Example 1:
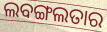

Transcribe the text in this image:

ଲବଙ୍ଗଲତାର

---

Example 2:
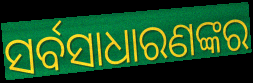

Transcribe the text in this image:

ସର୍ବସାଧାରଣଙ୍କର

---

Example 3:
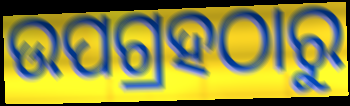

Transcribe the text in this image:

ଉପଗ୍ରହଠାରୁ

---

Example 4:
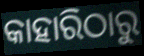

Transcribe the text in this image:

କାହାରିଠାରୁ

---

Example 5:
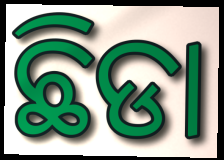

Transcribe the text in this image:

ଛିଡା